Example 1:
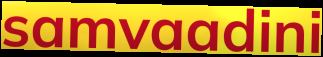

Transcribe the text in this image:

samvaadini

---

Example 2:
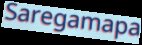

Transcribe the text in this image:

Saregamapa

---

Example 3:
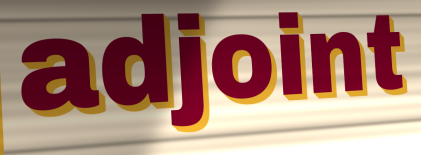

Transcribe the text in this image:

adjoint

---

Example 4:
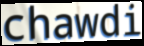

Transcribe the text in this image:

chawdi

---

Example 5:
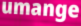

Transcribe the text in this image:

umange